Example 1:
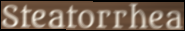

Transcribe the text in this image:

Steatorrhea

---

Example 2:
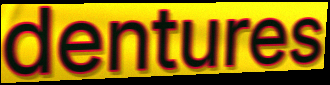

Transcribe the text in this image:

dentures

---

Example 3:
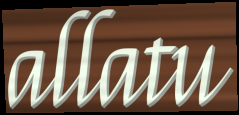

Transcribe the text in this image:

allatu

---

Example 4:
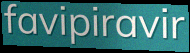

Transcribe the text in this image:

favipiravir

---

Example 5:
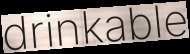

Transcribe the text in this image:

drinkable